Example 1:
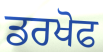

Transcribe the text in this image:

ਡਰਖੋਫ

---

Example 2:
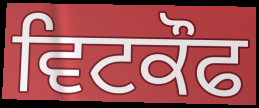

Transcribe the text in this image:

ਵਿਟਕੌਫ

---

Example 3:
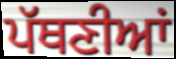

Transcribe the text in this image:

ਪੱਥਣੀਆਂ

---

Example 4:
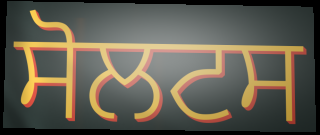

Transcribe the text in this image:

ਸੋਲਟਸ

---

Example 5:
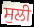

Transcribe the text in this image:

ਸੁਲੀ